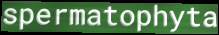
spermatophyta